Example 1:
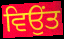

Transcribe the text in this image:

ਵਿਉਂਤ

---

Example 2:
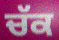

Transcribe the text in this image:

ਚੱਕ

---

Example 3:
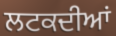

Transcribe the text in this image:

ਲਟਕਦੀਆਂ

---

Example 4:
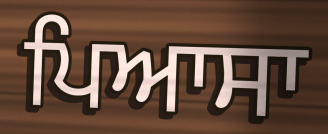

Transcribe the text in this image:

ਪਿਆਸਾ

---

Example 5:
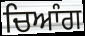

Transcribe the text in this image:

ਚਿਆੰਗ